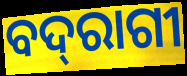
ବଦ୍‌ରାଗୀ